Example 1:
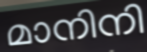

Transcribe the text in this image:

മാനിനി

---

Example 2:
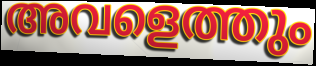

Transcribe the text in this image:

അവളെത്തും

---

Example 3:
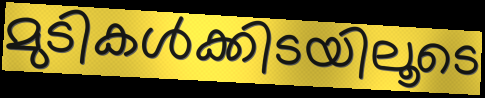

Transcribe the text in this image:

മുടികൾക്കിടയിലൂടെ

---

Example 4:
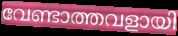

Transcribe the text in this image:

വേണ്ടാത്തവളായി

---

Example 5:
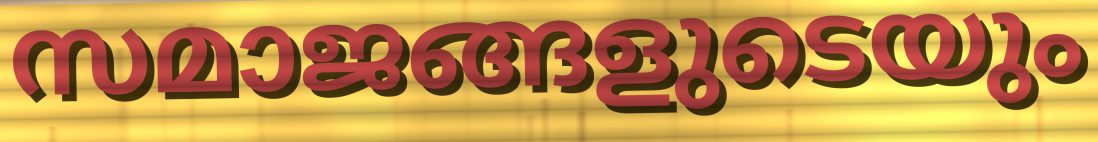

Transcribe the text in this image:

സമാജങ്ങളുടെയും